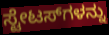
ಸ್ಟೇಟಸ್‌ಗಳನ್ನು